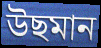
উছমান